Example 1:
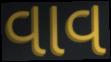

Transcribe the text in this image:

વાવ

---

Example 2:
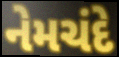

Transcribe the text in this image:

નેમચંદે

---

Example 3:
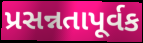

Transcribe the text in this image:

પ્રસન્નતાપૂર્વક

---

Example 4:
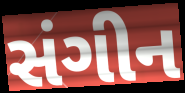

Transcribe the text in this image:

સંગીન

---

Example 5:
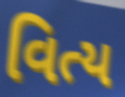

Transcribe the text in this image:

વિત્ય